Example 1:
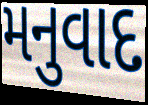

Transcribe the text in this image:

મનુવાદ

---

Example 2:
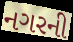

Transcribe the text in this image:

નગરની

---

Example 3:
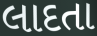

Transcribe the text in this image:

લાદતા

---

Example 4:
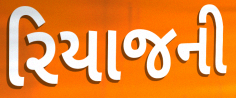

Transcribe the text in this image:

રિયાજની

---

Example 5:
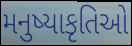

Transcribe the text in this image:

મનુષ્યાકૃતિઓ